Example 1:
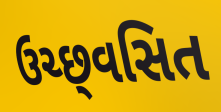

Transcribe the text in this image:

ઉચ્છ્‌વસિત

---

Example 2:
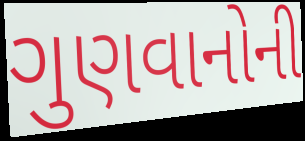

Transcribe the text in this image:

ગુણવાનોની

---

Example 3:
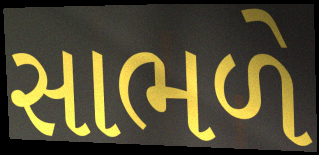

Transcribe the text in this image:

સાભળે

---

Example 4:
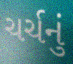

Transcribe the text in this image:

ચર્ચનું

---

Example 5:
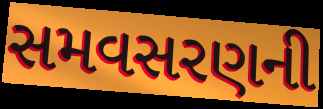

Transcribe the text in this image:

સમવસરણની